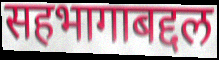
सहभागाबद्दल